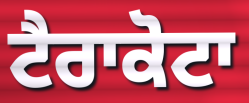
ਟੈਰਾਕੋਟਾ